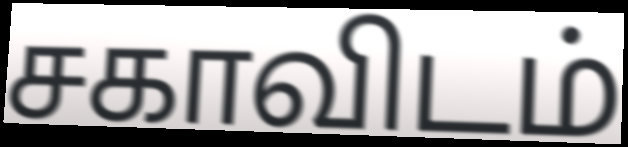
சகாவிடம்